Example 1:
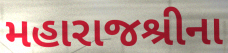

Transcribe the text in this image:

મહારાજશ્રીના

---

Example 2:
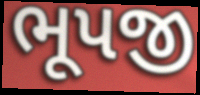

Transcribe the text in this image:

ભૂપજી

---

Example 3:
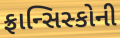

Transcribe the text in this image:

ફ્રાન્સિસ્કોની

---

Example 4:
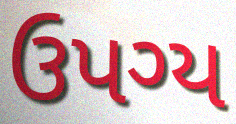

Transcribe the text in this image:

ઉપગ્ય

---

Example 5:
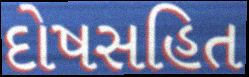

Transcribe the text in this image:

દોષસહિત